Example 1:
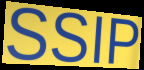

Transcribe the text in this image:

SSIP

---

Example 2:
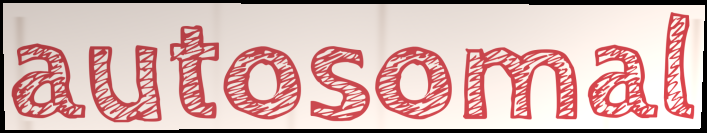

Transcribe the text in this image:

autosomal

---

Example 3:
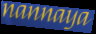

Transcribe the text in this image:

nannaya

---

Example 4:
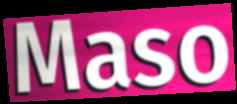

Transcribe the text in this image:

Maso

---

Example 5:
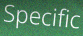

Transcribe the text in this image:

Specific